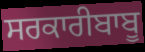
ਸਰਕਾਰੀਬਾਬੂ